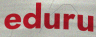
eduru